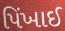
પિંખાઈ